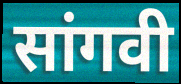
सांगवी